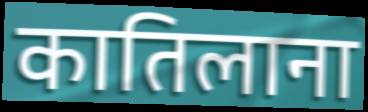
कातिलाना